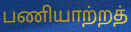
பணியாற்றத்